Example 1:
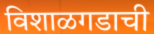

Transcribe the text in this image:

विशाळगडाची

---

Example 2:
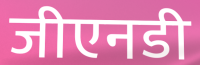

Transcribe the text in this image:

जीएनडी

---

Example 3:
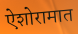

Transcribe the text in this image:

ऐशोरामात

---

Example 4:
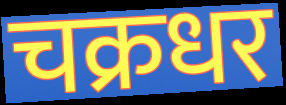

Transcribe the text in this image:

चक्रधर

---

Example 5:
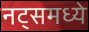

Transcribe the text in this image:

नट्समध्ये